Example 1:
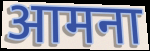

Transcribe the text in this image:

आमना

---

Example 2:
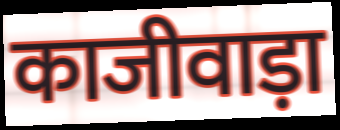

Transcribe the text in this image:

काजीवाड़ा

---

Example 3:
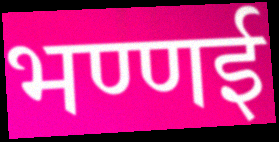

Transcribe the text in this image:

भण्णई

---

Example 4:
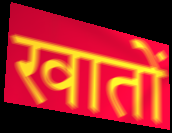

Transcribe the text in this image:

खातों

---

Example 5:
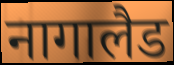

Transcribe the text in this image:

नागालैड